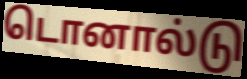
டொனால்டு